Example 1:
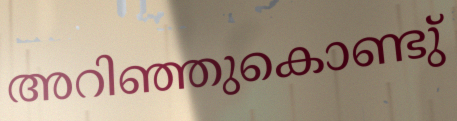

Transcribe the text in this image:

അറിഞ്ഞുകൊണ്ടു്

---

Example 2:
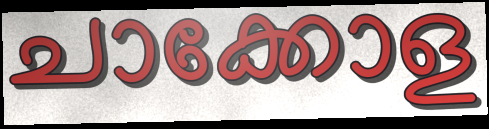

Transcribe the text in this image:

ചാക്കോള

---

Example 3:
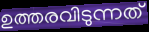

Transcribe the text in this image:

ഉത്തരവിടുന്നത്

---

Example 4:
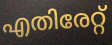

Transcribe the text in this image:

എതിരേറ്റ്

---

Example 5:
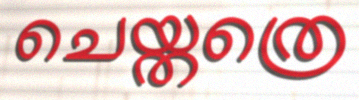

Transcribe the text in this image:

ചെയ്തത്രെ